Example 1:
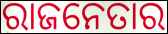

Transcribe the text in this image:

ରାଜନେତାର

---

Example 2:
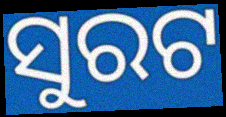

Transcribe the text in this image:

ସୁରଟ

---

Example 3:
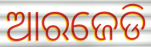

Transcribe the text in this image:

ଆରଜେଡି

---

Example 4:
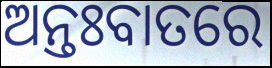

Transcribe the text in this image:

ଅନ୍ତଃବାତରେ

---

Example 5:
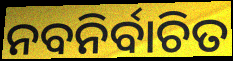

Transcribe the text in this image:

ନବନିର୍ବାଚିତ